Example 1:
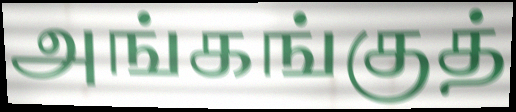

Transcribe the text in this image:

அங்கங்குத்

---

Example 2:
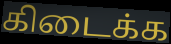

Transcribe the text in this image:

கிடைக்க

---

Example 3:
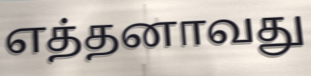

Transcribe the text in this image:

எத்தனாவது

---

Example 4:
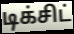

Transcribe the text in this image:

டிக்சிட்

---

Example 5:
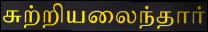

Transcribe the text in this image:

சுற்றியலைந்தார்